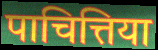
पाचित्तिया